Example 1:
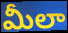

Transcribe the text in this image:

మీలా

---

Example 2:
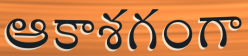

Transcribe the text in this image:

ఆకాశగంగా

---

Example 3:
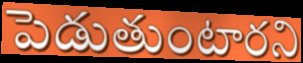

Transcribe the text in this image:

పెడుతుంటారని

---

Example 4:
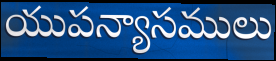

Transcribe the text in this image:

యుపన్యాసములు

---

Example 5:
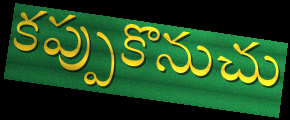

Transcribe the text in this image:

కప్పుకొనుచు